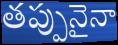
తప్పునైనా